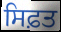
ਸਿਫ਼ਤ